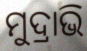
ମୁଦ୍ରାଭି